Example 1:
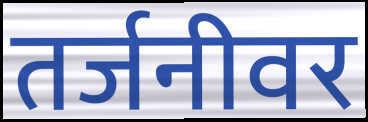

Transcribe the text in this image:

तर्जनीवर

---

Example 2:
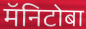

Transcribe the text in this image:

मॅनिटोबा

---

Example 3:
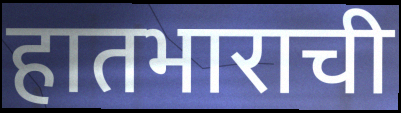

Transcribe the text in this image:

हातभाराची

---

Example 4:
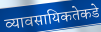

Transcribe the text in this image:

व्यावसायिकतेकडे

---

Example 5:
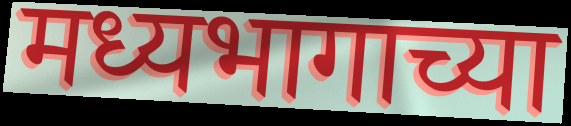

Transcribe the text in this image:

मध्यभागाच्या